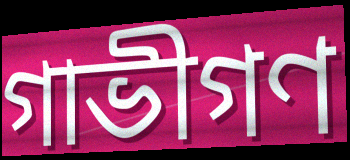
গাভীগণ